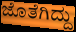
ಜೊತೆಗಿದ್ದು